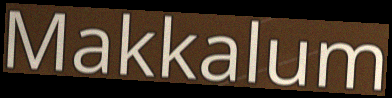
Makkalum